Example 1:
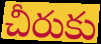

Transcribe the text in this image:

చీరుకు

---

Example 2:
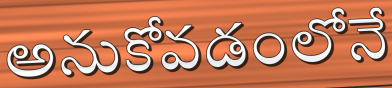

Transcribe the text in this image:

అనుకోవడంలోనే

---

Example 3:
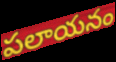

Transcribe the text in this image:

పలాయనం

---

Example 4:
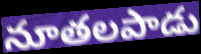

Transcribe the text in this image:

నూతలపాడు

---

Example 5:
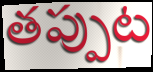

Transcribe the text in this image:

తప్పుట